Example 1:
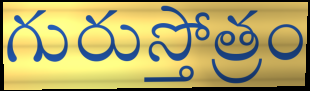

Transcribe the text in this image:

గురుస్తోత్రం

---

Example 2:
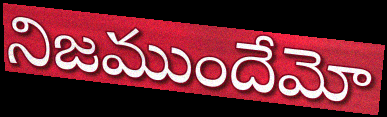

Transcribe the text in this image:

నిజముందేమో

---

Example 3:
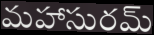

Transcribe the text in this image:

మహాసురమ్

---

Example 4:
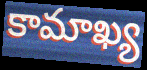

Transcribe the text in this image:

కామాఖ్య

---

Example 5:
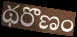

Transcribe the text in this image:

థరొణం